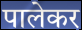
पालेकर